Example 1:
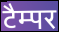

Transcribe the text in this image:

टैम्पर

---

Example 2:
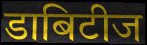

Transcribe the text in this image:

डाबिटीज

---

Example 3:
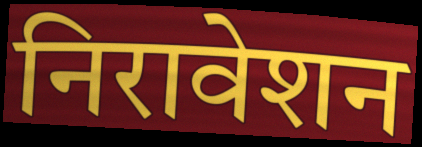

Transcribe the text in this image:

निरावेशन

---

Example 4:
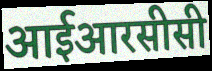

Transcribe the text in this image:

आईआरसीसी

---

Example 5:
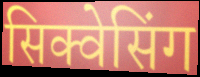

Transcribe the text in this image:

सिक्वेसिंग